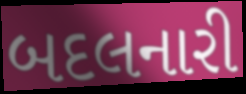
બદલનારી